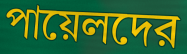
পায়েলদের